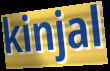
kinjal